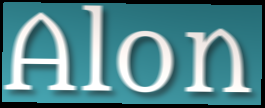
Alon